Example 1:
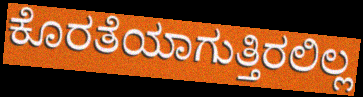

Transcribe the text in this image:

ಕೊರತೆಯಾಗುತ್ತಿರಲಿಲ್ಲ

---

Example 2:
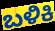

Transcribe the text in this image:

ಬಳಿಕಿ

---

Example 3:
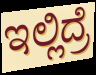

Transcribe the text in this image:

ಇಲ್ಲಿದ್ರೆ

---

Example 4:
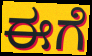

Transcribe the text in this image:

ಈಗೆ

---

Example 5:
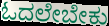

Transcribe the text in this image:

ಓದಲೇಬೇಕು